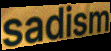
sadism